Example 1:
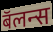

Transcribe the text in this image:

बॅलन्स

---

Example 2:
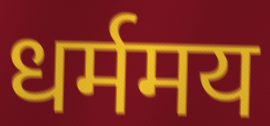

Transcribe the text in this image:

धर्ममय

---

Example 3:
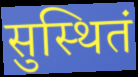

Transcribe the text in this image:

सुस्थितं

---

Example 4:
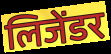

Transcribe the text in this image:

लिजेंडर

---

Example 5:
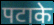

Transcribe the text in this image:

पटाके